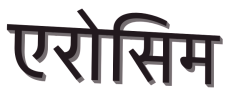
एरोसिम